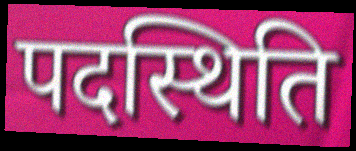
पदस्थिति